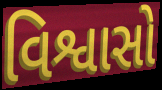
વિશ્વાસો